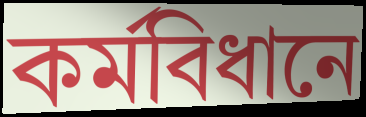
কর্মবিধানে